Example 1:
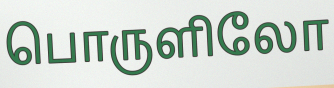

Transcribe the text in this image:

பொருளிலோ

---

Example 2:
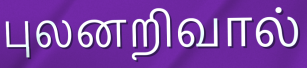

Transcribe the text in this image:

புலனறிவால்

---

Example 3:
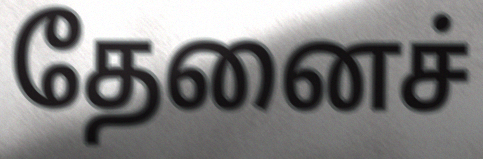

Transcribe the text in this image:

தேனைச்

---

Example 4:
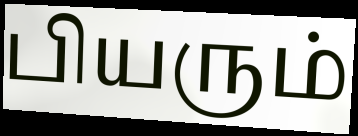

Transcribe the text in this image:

பியரும்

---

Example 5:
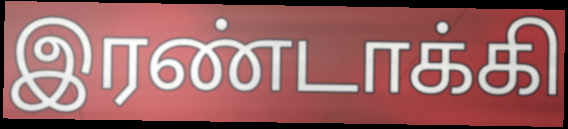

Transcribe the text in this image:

இரண்டாக்கி